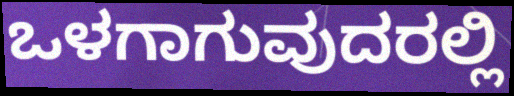
ಒಳಗಾಗುವುದರಲ್ಲಿ